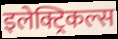
इलेक्ट्रिकल्‍स